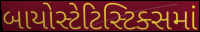
બાયોસ્ટેટિસ્ટિક્સમાં